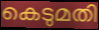
കെടുമതി